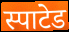
स्पाटेड